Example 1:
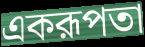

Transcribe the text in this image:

একরূপতা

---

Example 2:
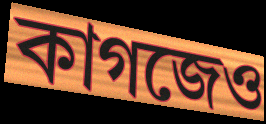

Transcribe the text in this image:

কাগজেও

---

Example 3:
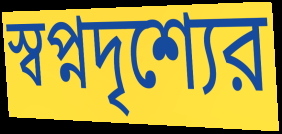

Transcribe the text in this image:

স্বপ্নদৃশ্যের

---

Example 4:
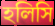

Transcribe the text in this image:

হলিসি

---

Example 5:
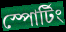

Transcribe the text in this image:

স্পোর্টিং